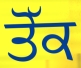
ਤੋੱਕ